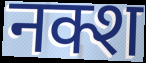
नक्श